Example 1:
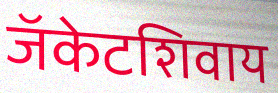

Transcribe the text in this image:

जॅकेटशिवाय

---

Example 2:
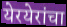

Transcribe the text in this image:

येरयेरांचा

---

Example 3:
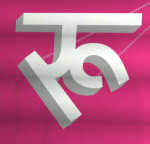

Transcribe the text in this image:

रू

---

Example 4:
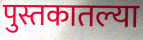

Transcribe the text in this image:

पुस्तकातल्या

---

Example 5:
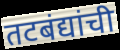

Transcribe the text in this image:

तटबंद्यांची